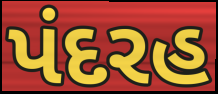
પંદરહ